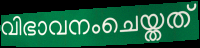
വിഭാവനംചെയ്തത്